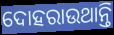
ଦୋହରାଉଥାନ୍ତି